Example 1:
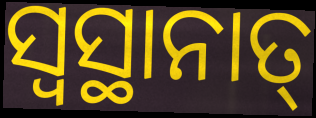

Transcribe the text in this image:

ସ୍ଵସ୍ଥାନାତ୍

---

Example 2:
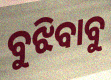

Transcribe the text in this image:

ବୁଝିବାବୁ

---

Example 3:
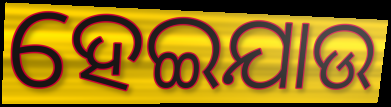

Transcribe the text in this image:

ହେଇଯାଉ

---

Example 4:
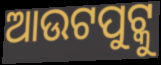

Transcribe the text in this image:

ଆଉଟପୁଟ୍କୁ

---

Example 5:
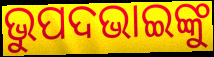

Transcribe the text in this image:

ଭୁପଦଭାଇଙ୍କୁ